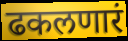
ढकलणारं